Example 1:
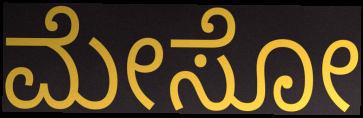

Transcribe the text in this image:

ಮೇಸೋ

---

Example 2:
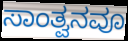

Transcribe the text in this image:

ಸಾಂತ್ವನವೂ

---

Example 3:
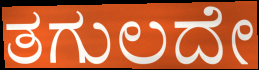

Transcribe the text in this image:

ತಗುಲದೇ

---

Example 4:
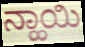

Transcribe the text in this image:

ನ್ಹಾಯಿ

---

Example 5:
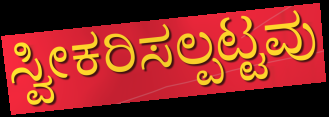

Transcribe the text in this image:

ಸ್ವೀಕರಿಸಲ್ಪಟ್ಟವು